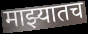
माझ्यातच